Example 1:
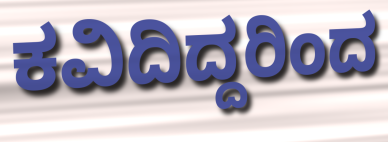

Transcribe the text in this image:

ಕವಿದಿದ್ದರಿಂದ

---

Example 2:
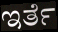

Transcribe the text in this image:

ಇರ್ತೆ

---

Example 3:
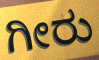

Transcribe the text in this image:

ಗೀರು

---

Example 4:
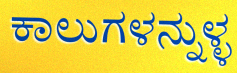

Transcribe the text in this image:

ಕಾಲುಗಳನ್ನುಳ್ಳ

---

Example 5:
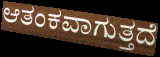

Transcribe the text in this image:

ಆತಂಕವಾಗುತ್ತದೆ